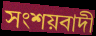
সংশয়বাদী